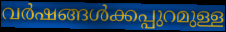
വർഷങ്ങൾക്കപ്പുറമുള്ള